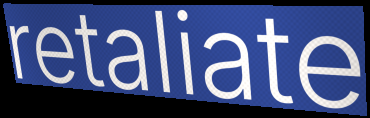
retaliate